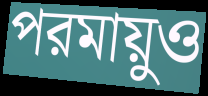
পরমায়ুও